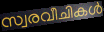
സ്വരവീചികൾ